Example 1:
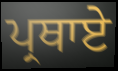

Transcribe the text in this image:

ਪ੍ਰਥਾਏ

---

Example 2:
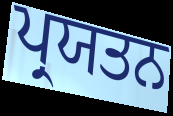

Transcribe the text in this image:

ਪ੍ਰਯਤਨ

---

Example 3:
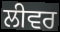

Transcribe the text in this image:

ਲੀਵਰ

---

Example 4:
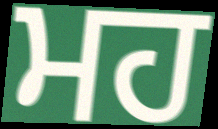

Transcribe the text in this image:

ਮਹ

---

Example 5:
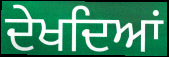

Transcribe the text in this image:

ਦੇਖਦਿਆਂ